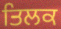
ਤਿਲਕ